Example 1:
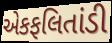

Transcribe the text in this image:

એકફલિતાંડી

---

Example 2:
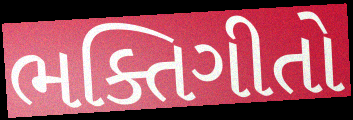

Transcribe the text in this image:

ભક્તિગીતો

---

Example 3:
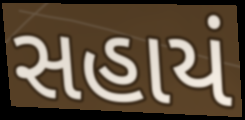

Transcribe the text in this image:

સહાયં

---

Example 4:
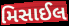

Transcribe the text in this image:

મિસાઈલ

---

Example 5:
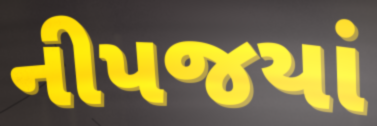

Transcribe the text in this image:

નીપજયાં